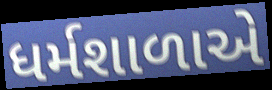
ધર્મશાળાએ